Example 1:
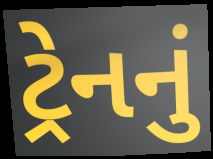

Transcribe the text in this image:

ટ્રેનનું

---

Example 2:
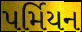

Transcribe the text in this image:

પર્મિયન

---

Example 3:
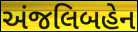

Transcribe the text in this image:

અંજલિબહેન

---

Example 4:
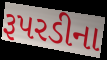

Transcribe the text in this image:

રૂપરડીના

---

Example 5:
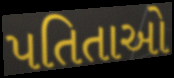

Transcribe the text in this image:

પતિતાઓ